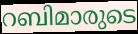
റബിമാരുടെ